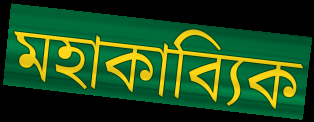
মহাকাব্যিক